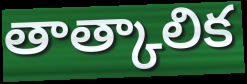
తాత్కాలిక